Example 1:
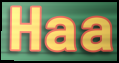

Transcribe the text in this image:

Haa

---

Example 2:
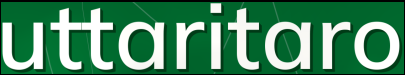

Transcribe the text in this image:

uttaritaro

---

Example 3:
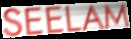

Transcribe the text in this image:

SEELAM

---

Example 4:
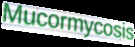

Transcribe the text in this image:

Mucormycosis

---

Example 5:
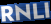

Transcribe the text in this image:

RNLI